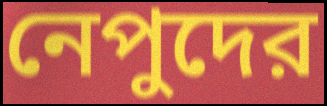
নেপুদের